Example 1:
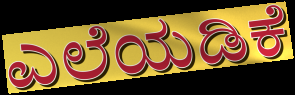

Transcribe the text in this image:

ಎಲೆಯಡಿಕೆ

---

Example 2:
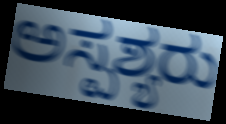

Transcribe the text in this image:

ಅಸ್ಪಶ್ಯರು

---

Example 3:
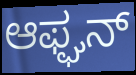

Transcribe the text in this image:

ಆಫ್ಘನ್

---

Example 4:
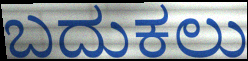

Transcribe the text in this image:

ಬದುಕಲು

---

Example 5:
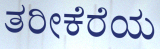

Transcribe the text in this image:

ತರೀಕೆರೆಯ